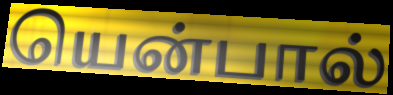
யென்பால்